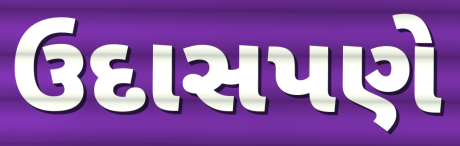
ઉદાસપણે